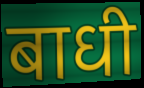
बाधी